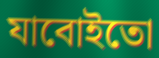
যাবোইতো